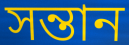
সন্তান